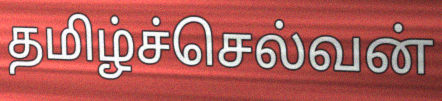
தமிழ்ச்செல்வன்